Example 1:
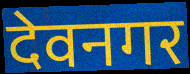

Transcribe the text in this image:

देवनगर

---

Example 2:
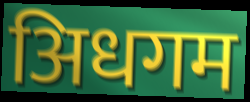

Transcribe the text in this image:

अिधगम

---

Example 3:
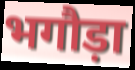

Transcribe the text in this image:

भगौड़ा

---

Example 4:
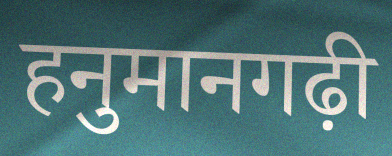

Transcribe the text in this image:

हनुमानगढ़ी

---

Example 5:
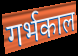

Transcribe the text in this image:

गर्भकाल